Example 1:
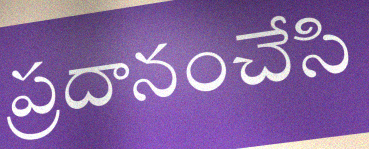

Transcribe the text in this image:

ప్రదానంచేసి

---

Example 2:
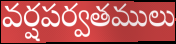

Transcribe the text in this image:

వర్షపర్వతములు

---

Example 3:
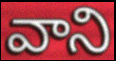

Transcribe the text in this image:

వాని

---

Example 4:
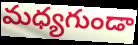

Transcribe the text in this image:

మధ్యగుండా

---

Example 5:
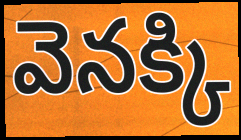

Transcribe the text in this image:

వెనక్కి